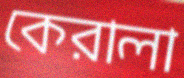
কেরালা